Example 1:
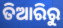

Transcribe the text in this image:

ତିଆରିରୁ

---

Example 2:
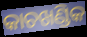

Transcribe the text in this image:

କାଚଖଣ୍ଡିକ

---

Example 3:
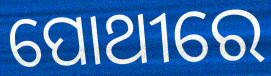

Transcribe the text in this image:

ପୋଥୀରେ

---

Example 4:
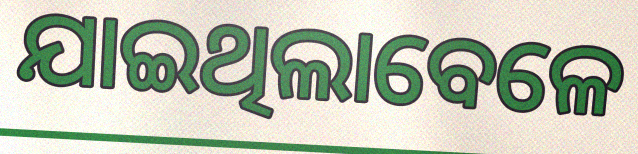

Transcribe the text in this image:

ଯାଇଥିଲାବେଳେ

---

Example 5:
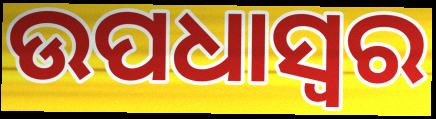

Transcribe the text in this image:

ଉପଧାସ୍ୱର